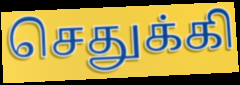
செதுக்கி